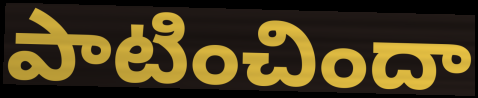
పాటించిందా